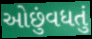
ઓછુંવધતું